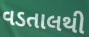
વડતાલથી